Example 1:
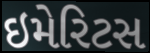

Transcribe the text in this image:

ઇમેરિટસ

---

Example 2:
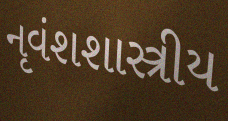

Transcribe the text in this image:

નૃવંશશાસ્ત્રીય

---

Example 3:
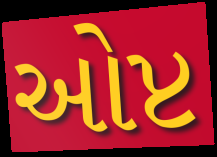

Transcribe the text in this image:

ઓપ્ટ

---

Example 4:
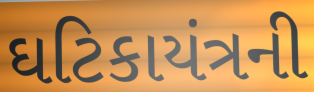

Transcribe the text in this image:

ઘટિકાયંત્રની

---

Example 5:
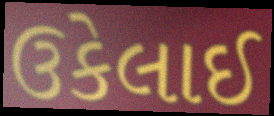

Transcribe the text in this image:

ઉકેલાઈ